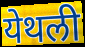
येथली